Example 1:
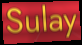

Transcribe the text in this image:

Sulay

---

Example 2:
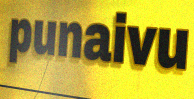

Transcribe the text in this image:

punaivu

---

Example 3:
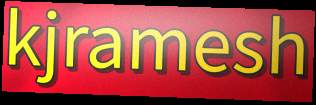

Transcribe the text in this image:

kjramesh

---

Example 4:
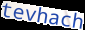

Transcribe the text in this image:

tevhach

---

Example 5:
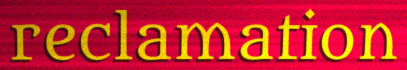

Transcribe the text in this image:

reclamation